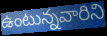
ఉంటున్నవారిని